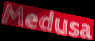
Medusa